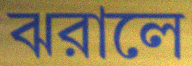
ঝরালে